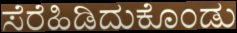
ಸೆರೆಹಿಡಿದುಕೊಂಡು